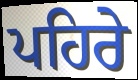
ਪਹਿਰੇ